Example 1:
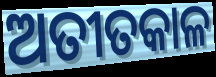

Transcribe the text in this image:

ଅତୀତକାଳ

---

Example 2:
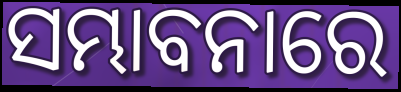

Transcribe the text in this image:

ସମ୍ଭାବନାରେ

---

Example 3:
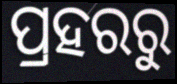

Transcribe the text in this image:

ପ୍ରହରରୁ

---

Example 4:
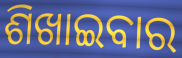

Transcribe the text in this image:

ଶିଖାଇବାର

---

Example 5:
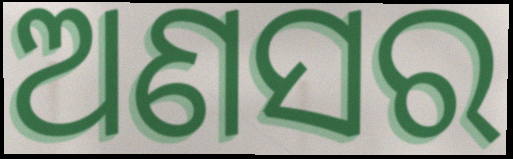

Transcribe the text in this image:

ଅଣସର